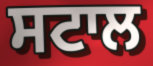
ਸਟਾਲ